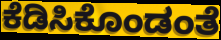
ಕೆಡಿಸಿಕೊಂಡಂತೆ